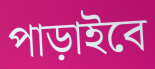
পাড়াইবে